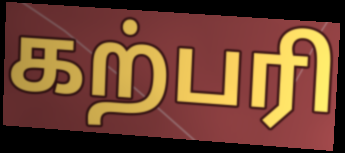
கற்பரி